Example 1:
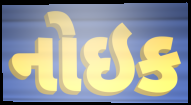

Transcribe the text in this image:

નોઇક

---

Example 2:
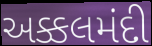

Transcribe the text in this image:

અક્કલમંદી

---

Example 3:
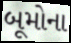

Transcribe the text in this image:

બૂમોના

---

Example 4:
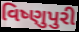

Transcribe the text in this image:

વિષ્ણુપુરી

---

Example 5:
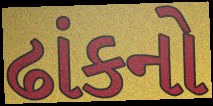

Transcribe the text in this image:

ઢાંકનો